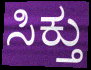
ಸಿಕ್ತು